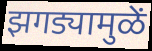
झगड्यामुळें